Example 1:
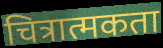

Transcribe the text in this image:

चित्रात्मकता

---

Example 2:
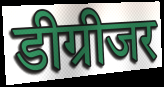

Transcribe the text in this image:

डीग्रीजर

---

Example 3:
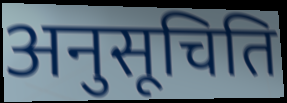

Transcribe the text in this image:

अनुसूचिति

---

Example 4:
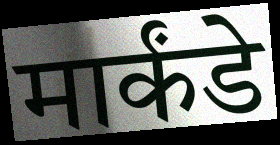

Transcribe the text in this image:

मार्कंडे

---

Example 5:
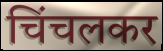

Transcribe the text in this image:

चिंचलकर